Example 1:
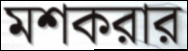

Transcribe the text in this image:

মশকরার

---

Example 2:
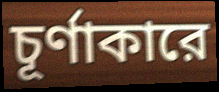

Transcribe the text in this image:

চূর্ণাকারে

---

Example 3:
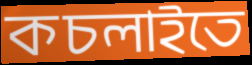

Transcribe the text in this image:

কচলাইতে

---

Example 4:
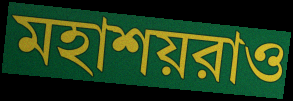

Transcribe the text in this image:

মহাশয়রাও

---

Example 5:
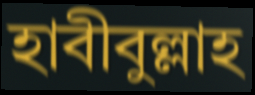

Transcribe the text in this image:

হাবীবুল্লাহ